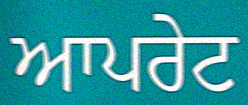
ਆਪਰੇਟ